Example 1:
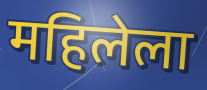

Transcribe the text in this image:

महिलेला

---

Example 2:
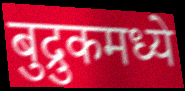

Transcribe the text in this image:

बुद्रुकमध्ये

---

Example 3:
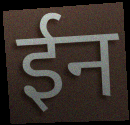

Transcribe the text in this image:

ईन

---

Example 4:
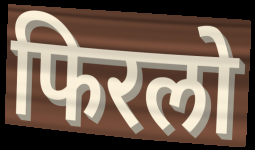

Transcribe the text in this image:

फिरलो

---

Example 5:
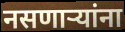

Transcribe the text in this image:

नसणाऱ्यांना